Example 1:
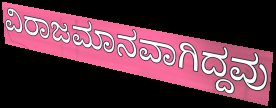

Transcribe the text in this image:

ವಿರಾಜಮಾನವಾಗಿದ್ದವು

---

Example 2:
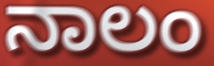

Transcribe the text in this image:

ನಾಲಂ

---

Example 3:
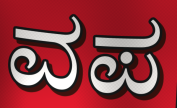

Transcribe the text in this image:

ವಪ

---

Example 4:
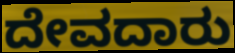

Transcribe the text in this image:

ದೇವದಾರು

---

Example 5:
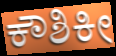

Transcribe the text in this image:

ಕೌಶಿಕೀ